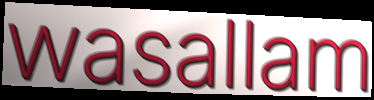
wasallam